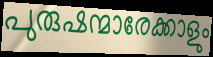
പുരുഷന്മാരേക്കാളും